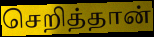
செறித்தான்